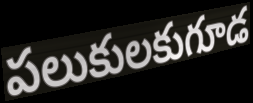
పలుకులకుగూడ